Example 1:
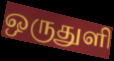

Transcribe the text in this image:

ஒருதுளி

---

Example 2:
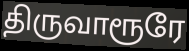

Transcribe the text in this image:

திருவாரூரே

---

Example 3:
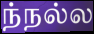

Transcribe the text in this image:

ந்நல்ல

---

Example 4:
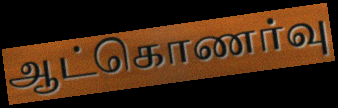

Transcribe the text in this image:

ஆட்கொணர்வு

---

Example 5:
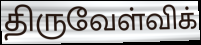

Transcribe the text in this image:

திருவேள்விக்